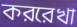
কররেখা